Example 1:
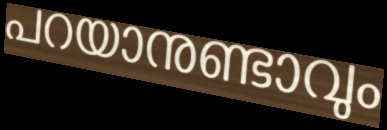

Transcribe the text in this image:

പറയാനുണ്ടാവും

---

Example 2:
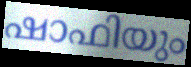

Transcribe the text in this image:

ഷാഫിയും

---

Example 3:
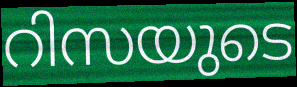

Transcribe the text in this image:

റിസയുടെ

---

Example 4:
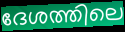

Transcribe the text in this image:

ദേശത്തിലെ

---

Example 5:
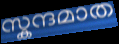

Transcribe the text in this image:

സ്കന്ദമാത